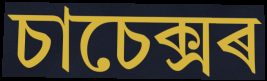
চাচেক্সৰ